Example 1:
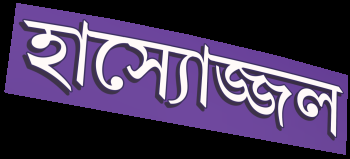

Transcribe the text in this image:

হাস্যোজ্জল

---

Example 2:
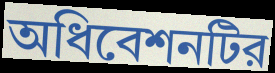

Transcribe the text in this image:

অধিবেশনটির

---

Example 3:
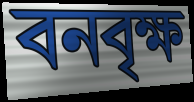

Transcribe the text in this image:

বনবৃক্ষ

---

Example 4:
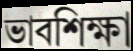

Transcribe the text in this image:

ভাবশিক্ষা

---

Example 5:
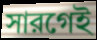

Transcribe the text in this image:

সারগেই